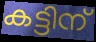
കട്ടിന്